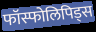
फॉस्फोलिपिड्स